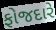
ફોજદારે